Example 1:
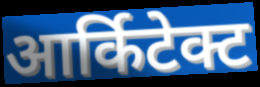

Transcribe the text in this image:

आर्किटेक्ट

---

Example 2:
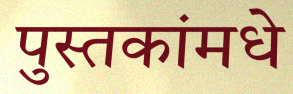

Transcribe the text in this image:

पुस्तकांमधे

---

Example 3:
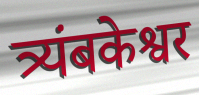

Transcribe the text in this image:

त्र्यंबकेश्वर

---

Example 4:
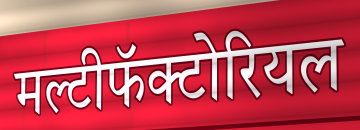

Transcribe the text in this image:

मल्टीफॅक्टोरियल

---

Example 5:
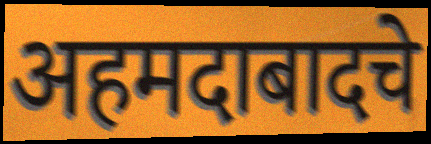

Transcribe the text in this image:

अहमदाबादचे